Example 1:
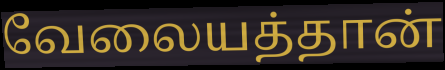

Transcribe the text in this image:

வேலையத்தான்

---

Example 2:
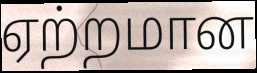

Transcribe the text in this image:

ஏற்றமான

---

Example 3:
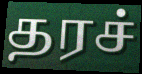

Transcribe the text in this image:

தரச்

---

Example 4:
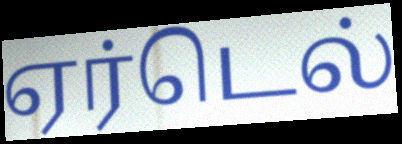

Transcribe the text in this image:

ஏர்டெல்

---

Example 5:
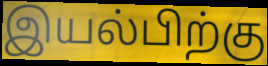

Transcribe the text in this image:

இயல்பிற்கு